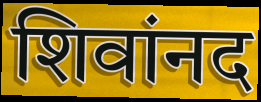
शिवांनद